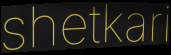
shetkari